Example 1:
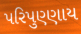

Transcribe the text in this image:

પરિપુણ્ણાય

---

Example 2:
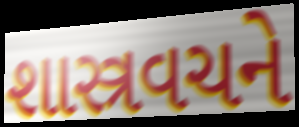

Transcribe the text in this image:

શાસ્ત્રવચને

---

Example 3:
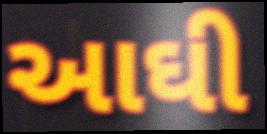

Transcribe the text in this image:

આઘી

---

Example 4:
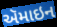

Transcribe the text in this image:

ઍમાઇન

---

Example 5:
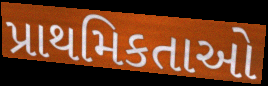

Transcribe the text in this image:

પ્રાથમિકતાઓ